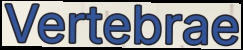
Vertebrae